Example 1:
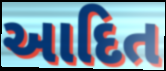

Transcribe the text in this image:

આદિત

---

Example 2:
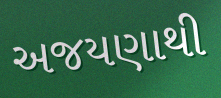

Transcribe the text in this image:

અજયણાથી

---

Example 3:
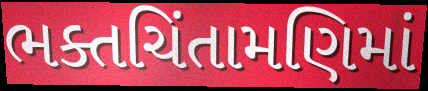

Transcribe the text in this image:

ભક્તચિંતામણિમાં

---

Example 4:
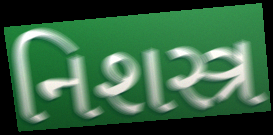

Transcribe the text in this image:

નિશસ્ત્ર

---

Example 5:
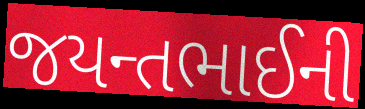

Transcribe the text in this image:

જયન્તભાઈની